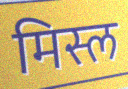
मिस्ल